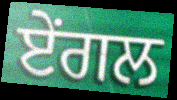
ਏਂਗਲ